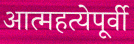
आत्महत्येपूर्वी